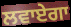
ਲਵਾਏਗਾ